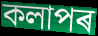
কলাপৰ